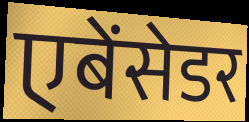
एबेंसेडर